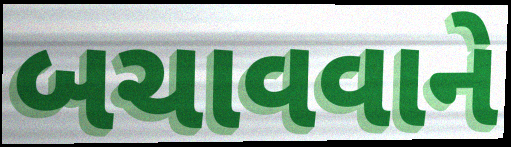
બચાવવાને